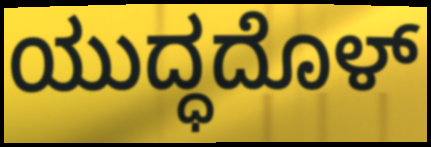
ಯುದ್ಧದೊಳ್